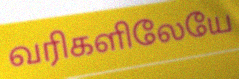
வரிகளிலேயே